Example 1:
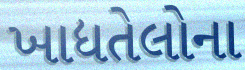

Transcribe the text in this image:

ખાદ્યતેલોના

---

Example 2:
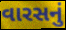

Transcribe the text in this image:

વારસનું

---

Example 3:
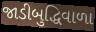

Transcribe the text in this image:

જાડીબુદ્ધિવાળા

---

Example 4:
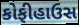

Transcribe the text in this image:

કોફીહાઉસ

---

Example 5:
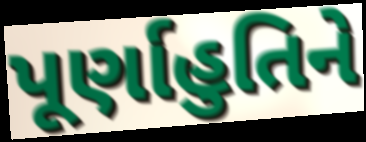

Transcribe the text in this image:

પૂર્ણાહુતિને